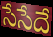
సేసేదే